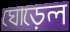
ঘোড়েল